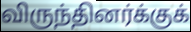
விருந்தினர்க்குக்